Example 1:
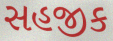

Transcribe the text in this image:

સહજીક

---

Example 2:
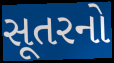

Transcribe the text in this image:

સૂતરનો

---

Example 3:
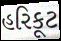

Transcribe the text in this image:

હરિકૂટ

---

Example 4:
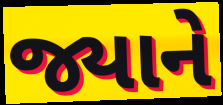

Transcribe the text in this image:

જ્યાને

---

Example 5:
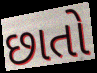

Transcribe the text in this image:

છાતો